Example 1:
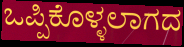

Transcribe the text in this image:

ಒಪ್ಪಿಕೊಳ್ಳಲಾಗದ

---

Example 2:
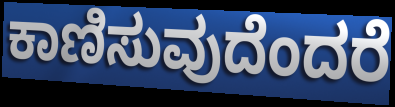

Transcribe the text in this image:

ಕಾಣಿಸುವುದೆಂದರೆ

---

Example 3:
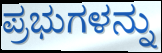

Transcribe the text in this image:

ಪ್ರಭುಗಳನ್ನು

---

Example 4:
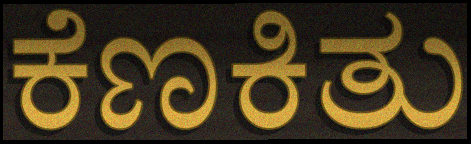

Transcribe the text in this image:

ಕೆಣಕಿತು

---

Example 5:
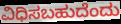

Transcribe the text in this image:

ವಿಧಿಸಬಹುದೆಂದು